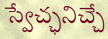
స్వేచ్ఛనిచ్చే